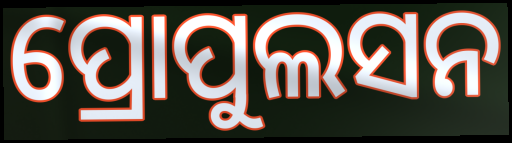
ପ୍ରୋପୁଲସନ